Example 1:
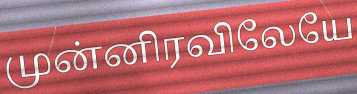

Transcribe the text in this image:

முன்னிரவிலேயே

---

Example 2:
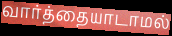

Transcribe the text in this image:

வார்த்தையாடாமல்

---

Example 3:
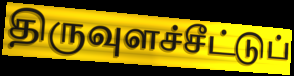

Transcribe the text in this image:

திருவுளச்சீட்டுப்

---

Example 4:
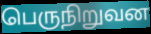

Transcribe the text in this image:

பெருநிறுவன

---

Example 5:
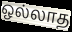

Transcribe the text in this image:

ஒல்லாத